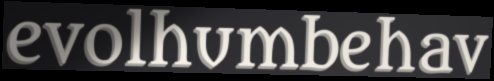
evolhumbehav